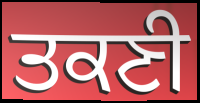
ਤਕਣੀ